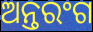
ଅନ୍ତରଂଗ